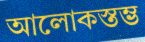
আলোকস্তম্ভ